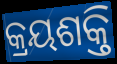
କ୍ରୟଶକ୍ତି